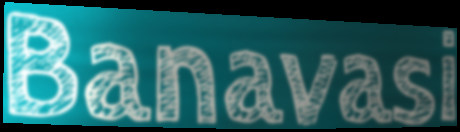
Banavasi